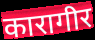
कारागीर